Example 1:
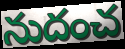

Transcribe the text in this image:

నుదంచ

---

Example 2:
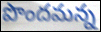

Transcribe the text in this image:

పొందమన్న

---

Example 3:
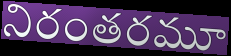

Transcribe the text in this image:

నిరంతరమూ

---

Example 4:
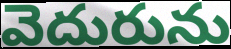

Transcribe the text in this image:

వెదురును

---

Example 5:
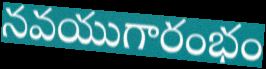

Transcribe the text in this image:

నవయుగారంభం